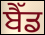
ਬੈੱਡ